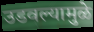
उडवल्यामुळे